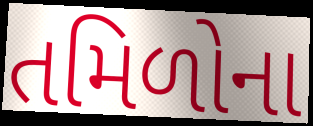
તમિળોના